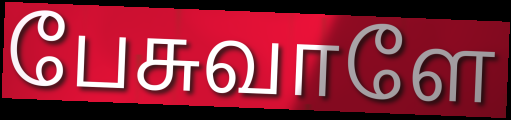
பேசுவாளே